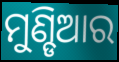
ମୁଣ୍ଡିଆର